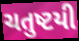
ચતુષ્ટયી